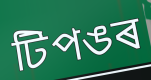
টিপঙৰ